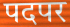
पदपर